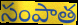
సంపాత